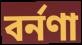
বর্নণা